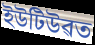
ইউটিউৱত